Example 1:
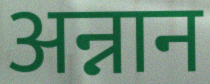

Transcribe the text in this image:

अन्नान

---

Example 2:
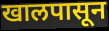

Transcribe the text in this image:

खालपासून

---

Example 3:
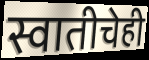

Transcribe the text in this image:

स्वातीचेही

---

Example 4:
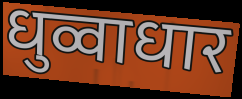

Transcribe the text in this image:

धुव्वाधार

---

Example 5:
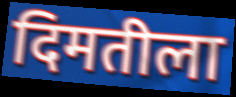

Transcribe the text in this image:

दिमतीला